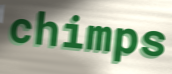
chimps